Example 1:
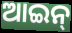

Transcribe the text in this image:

ଆଇନ୍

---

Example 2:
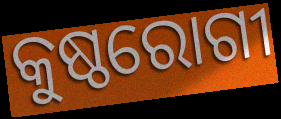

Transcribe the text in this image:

କୁଷ୍ଠରୋଗୀ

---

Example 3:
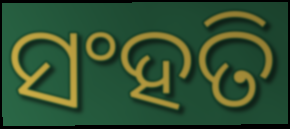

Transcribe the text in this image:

ସଂହତି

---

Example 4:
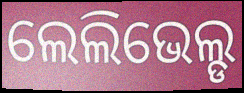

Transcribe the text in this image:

ଲେଲିଭେଲ୍ଡ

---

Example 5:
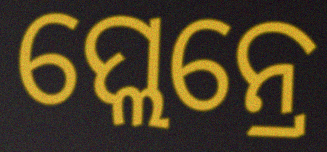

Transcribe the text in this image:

ପ୍ଲେନ୍ରେ